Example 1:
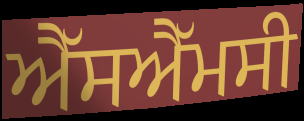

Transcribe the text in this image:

ਐੱਸਐੱਮਸੀ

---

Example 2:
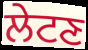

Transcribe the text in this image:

ਲੇਟਣ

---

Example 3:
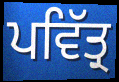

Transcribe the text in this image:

ਪਵਿੱਤ੍ਰ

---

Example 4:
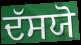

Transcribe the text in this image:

ਦੱਸਯੋ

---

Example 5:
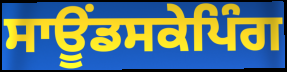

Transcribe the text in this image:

ਸਾਊਂਡਸਕੇਪਿੰਗ